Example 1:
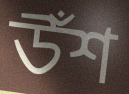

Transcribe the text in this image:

উঁশ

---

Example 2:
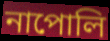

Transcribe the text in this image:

নাপোলি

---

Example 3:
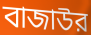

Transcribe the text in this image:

বাজাউর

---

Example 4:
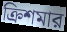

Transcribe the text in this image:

ক্রিশমার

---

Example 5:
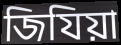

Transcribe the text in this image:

জিযিয়া